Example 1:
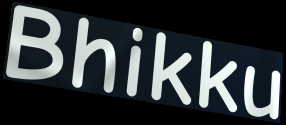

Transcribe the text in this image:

Bhikku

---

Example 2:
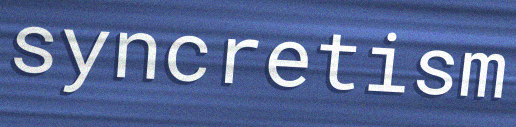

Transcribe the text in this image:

syncretism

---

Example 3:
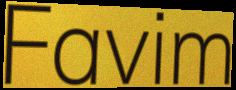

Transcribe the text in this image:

Favim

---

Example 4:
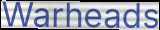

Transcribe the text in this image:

Warheads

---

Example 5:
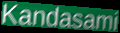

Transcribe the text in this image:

Kandasami